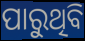
ପାରୁଥିବି